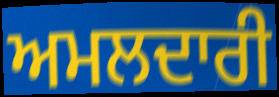
ਅਮਲਦਾਰੀ